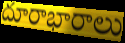
దూరాభారాలు